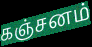
கஞ்சனம்